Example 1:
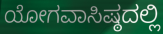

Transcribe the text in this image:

ಯೋಗವಾಸಿಷ್ಠದಲ್ಲಿ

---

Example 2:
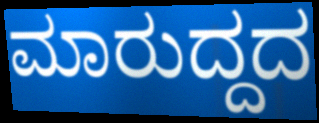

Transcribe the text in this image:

ಮಾರುದ್ದದ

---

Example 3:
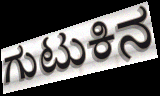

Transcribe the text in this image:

ಗುಟುಕಿನ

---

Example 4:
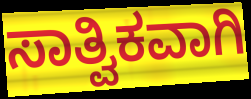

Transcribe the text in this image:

ಸಾತ್ವಿಕವಾಗಿ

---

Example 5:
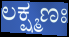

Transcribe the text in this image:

ಲಕ್ಷ್ಮಣಃ